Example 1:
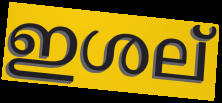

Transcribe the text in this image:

ഇശല്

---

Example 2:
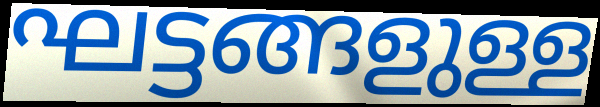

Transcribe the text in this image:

ഘട്ടങ്ങളുള്ള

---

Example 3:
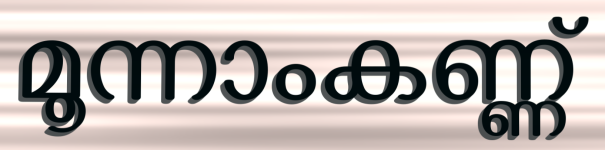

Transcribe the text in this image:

മൂന്നാംകണ്ണ്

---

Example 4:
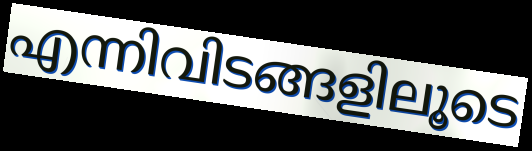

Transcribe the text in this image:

എന്നിവിടങ്ങളിലൂടെ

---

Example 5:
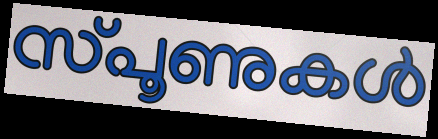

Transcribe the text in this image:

സ്പൂണുകൾ